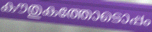
കൗതുകത്തോടൊപ്പം